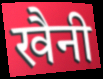
खैनी